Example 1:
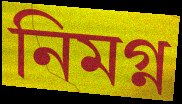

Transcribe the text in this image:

নিমগ্ন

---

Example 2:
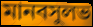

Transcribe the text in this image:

মানবসুলভ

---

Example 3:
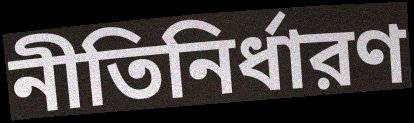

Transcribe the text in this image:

নীতিনির্ধারণ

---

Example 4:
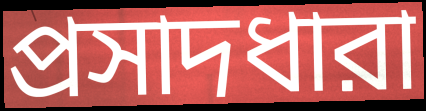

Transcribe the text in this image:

প্রসাদধারা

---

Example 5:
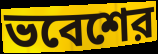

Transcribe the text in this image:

ভবেশের